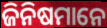
ଜିନିଷମାନେ